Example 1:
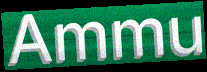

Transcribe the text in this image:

Ammu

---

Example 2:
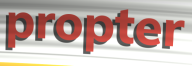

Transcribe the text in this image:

propter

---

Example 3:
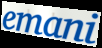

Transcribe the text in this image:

emani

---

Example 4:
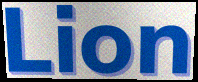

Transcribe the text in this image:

Lion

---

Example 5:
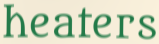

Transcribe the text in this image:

heaters